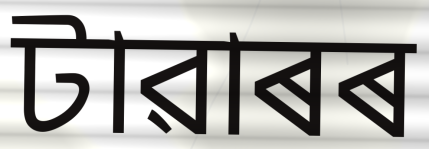
টাৱাৰৰ